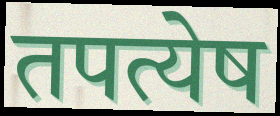
तपत्येष